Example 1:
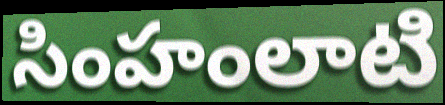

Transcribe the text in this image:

సింహంలాటి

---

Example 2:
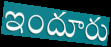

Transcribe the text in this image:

ఇందూరు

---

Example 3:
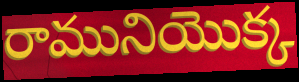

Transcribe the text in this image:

రామునియొక్క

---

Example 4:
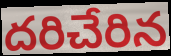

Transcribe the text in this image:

దరిచేరిన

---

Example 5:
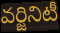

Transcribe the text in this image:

వర్జినిటీ